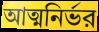
আত্মনির্ভর